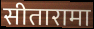
सीतारामा